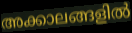
അക്കാലങ്ങളിൽ